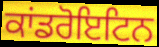
ਕਾਂਡਰੋਇਟਿਨ